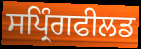
ਸਪ੍ਰਿੰਗਫੀਲਡ